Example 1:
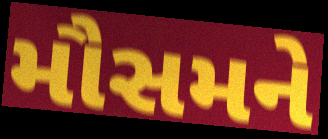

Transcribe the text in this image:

મૌસમને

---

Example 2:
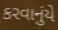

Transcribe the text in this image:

કરવાનુંયે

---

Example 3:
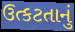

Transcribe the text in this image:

ઉત્કટતાનું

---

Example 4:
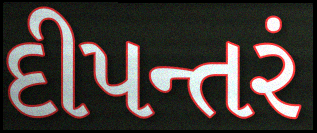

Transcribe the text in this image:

દીપન્તરં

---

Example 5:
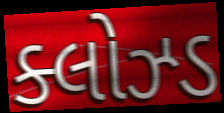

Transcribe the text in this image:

ક્લોઝ્ડ